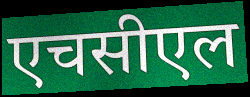
एचसीएल